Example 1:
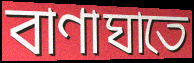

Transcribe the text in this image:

বাণাঘাতে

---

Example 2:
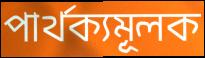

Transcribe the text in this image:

পার্থক্যমূলক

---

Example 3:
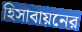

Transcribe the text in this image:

হিসাবায়নের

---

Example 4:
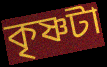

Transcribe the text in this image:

কৃষ্ণটা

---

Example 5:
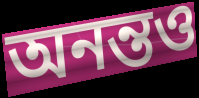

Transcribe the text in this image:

অনন্তও